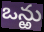
ఒన్ఱు